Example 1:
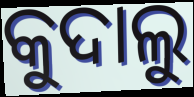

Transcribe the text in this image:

କୁଦାଲୁ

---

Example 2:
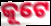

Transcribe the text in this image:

କୂଟେ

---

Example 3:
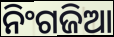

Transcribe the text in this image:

ନିଂଗଜିଆ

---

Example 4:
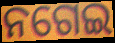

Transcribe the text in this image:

ନଗେଇ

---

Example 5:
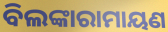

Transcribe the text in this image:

ବିଲଙ୍କାରାମାୟଣ